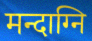
मन्दाग्नि